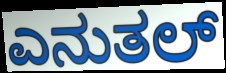
ಎನುತಲ್